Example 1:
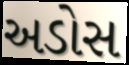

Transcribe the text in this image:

અડોસ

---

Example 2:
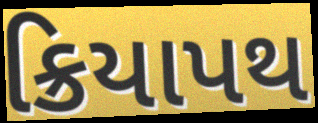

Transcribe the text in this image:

ક્રિયાપથ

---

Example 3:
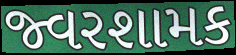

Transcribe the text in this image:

જ્વરશામક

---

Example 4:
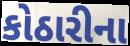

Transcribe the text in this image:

કોઠારીના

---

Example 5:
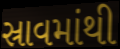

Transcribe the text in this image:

સ્રાવમાંથી